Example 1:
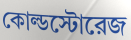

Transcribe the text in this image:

কোল্ডস্টোরেজ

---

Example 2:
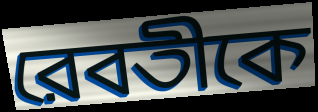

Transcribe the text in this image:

রেবতীকে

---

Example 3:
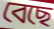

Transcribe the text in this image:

বেছে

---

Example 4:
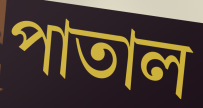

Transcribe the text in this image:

পাতাল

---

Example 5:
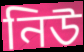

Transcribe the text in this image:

নিউ